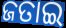
ଜତାଇ